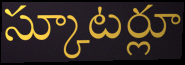
స్కూటర్లూ